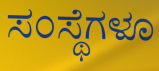
ಸಂಸ್ಥೆಗಳೂ